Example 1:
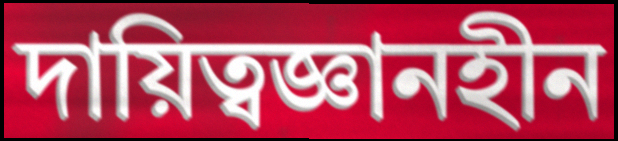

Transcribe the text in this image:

দায়িত্বজ্ঞানহীন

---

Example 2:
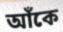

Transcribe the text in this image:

আঁকে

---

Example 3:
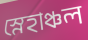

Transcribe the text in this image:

স্নেহাঞ্চল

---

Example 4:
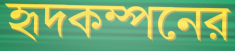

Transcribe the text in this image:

হৃদকম্পনের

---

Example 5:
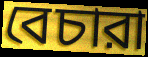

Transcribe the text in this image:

বেচারা